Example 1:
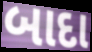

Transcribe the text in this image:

બાદા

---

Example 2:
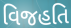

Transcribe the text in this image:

વિજહતિ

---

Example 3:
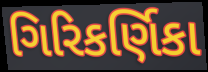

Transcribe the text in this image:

ગિરિકર્ણિકા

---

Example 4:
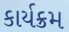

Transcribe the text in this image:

કાર્યક્રમ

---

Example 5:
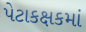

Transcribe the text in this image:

પેટાકક્ષકમાં